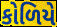
કોળિયે